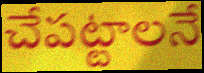
చేపట్టాలనే